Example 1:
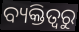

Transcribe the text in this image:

ବ୍ୟକ୍ତିତ୍ଵରୁ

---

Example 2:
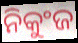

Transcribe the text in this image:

ନିକୁଂଜ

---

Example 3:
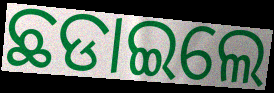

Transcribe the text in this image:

ଛଡାଇଲେ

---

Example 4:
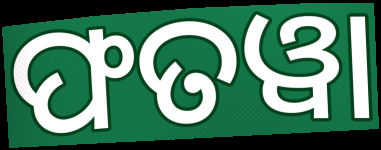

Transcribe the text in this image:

ଫତୱା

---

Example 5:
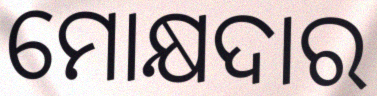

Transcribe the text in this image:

ମୋକ୍ଷଦାର